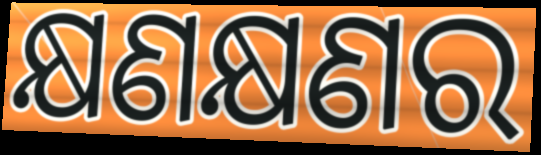
କ୍ଷଣକ୍ଷଣର